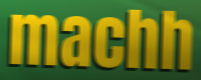
machh